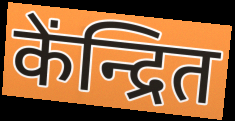
केंन्द्रित